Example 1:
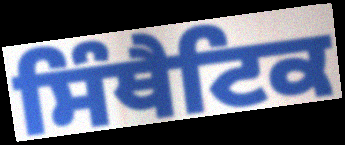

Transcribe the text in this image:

ਸਿੰਥੈਟਿਕ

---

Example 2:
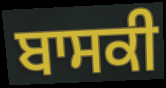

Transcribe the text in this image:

ਬਾਸਕੀ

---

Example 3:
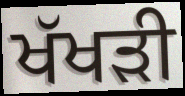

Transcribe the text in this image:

ਖੱਖੜੀ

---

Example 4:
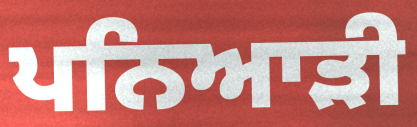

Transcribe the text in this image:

ਪਨਿਆੜੀ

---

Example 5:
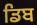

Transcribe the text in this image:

ਡਿਬ